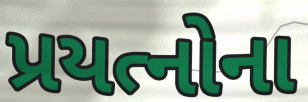
પ્રયત્નોના